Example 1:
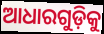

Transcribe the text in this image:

ଆଧାରଗୁଡ଼ିକୁ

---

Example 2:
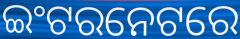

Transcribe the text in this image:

ଇଂଟରନେଟରେ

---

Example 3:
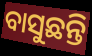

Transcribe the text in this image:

ବାସୁଛନ୍ତି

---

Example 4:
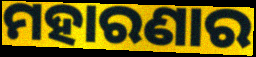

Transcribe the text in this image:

ମହାରଣାର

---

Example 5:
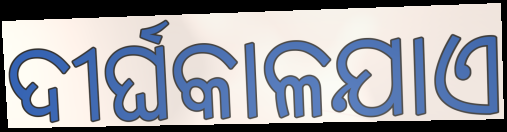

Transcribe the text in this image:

ଦୀର୍ଘକାଳଯାଏ